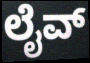
ಲೈವ್